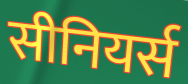
सीनियर्स